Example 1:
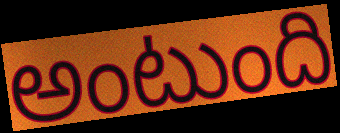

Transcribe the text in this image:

అంటుంది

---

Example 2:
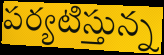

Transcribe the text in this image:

పర్యటిస్తున్న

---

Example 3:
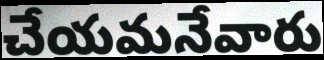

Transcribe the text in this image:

చేయమనేవారు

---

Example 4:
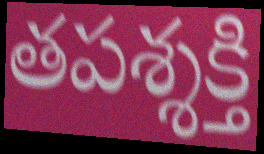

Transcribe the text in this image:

తపశ్శక్తి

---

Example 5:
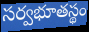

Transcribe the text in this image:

సర్వభూతస్థం